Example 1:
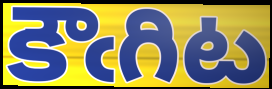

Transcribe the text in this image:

కౌఁగిట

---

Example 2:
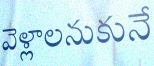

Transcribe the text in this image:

వెళ్లాలనుకునే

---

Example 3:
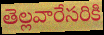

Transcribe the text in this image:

తెల్లవారేసరికి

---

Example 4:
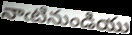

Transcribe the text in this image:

నాఁటినుండియు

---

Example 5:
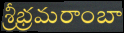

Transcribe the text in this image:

శ్రీభ్రమరాంబా